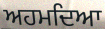
ਅਹਮਦਿਆ